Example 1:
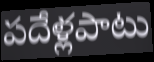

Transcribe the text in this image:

పదేళ్లపాటు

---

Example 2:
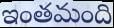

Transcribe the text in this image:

ఇంతమంది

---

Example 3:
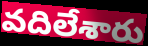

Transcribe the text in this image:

వదిలేశారు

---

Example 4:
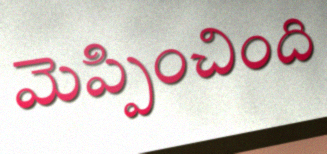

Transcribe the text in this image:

మెప్పించింది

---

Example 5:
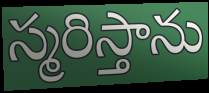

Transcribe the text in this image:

స్మరిస్తాను